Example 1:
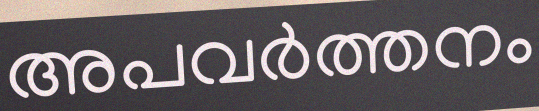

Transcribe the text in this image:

അപവർത്തനം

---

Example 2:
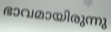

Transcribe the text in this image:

ഭാവമായിരുന്നു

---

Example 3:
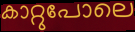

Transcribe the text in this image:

കാറ്റുപോലെ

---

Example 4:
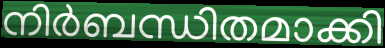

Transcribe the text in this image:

നിർബന്ധിതമാക്കി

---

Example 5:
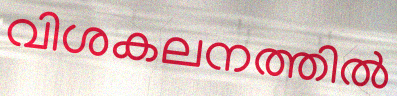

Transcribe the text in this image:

വിശകലനത്തിൽ